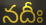
నదీః